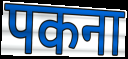
पकना